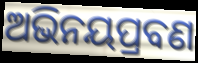
ଅଭିନୟପ୍ରବଣ